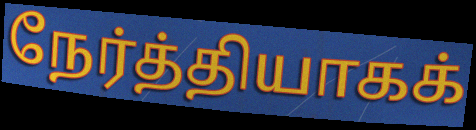
நேர்த்தியாகக்